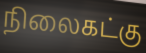
நிலைகட்கு